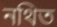
নথিত